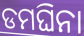
ଡମଘିନା